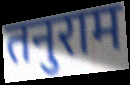
तनुराम